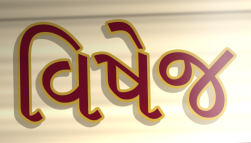
વિષેજ